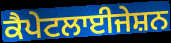
ਕੈਪੇਟਲਾਈਜੇਸ਼ਨ